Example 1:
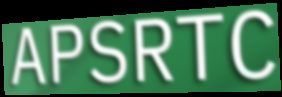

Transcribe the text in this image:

APSRTC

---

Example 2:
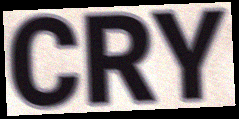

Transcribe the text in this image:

CRY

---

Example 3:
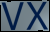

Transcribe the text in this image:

VX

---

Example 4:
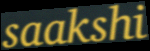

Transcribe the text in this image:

saakshi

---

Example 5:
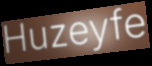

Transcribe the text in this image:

Huzeyfe